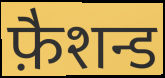
फ़ैशन्ड